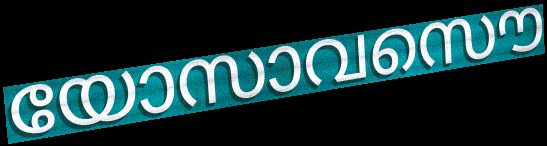
യോസാവസൌ